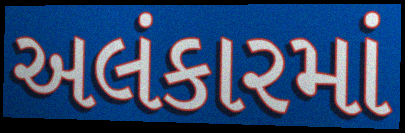
અલંકારમાં